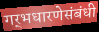
गर्भधारणेसंबंधी